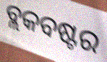
ବ୍ଲକବଷ୍ଟର